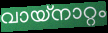
വായ്നാറ്റം